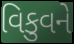
વિકુવને